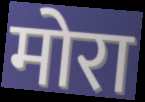
मोरा